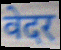
वेदर